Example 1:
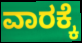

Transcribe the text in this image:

ವಾರಕ್ಕೆ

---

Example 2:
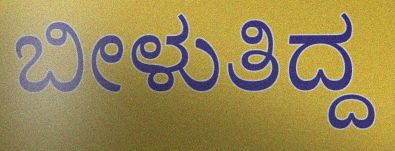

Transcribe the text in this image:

ಬೀಳುತಿದ್ದ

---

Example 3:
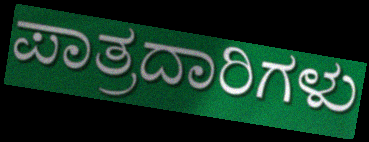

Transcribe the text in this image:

ಪಾತ್ರದಾರಿಗಳು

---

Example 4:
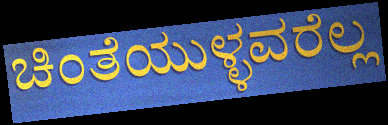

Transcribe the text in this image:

ಚಿಂತೆಯುಳ್ಳವರೆಲ್ಲ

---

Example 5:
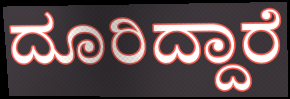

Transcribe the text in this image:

ದೂರಿದ್ದಾರೆ